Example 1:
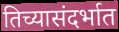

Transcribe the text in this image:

तिच्यासंदर्भात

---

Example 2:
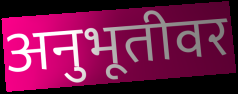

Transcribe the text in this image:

अनुभूतीवर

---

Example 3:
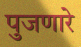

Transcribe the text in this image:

पुजणारे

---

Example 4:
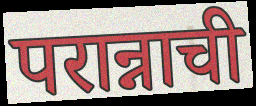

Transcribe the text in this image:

परान्नाची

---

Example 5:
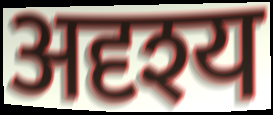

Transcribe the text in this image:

अदृश्य